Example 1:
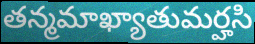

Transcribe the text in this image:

తన్మమాఖ్యాతుమర్హసి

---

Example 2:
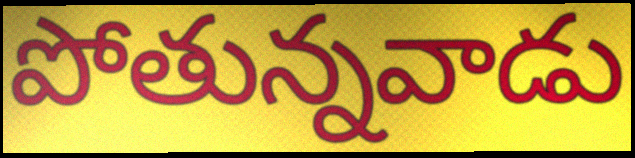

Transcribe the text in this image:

పోతున్నవాడు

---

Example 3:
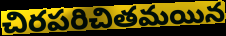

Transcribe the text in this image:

చిరపరిచితమయిన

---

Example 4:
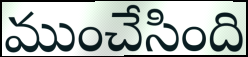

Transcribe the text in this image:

ముంచేసింది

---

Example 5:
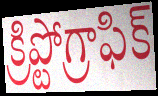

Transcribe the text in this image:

క్రిప్టోగ్రాఫిక్